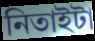
নিতাইটা